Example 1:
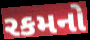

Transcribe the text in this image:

રકમનો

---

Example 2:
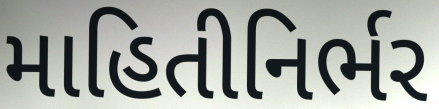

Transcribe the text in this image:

માહિતીનિર્ભર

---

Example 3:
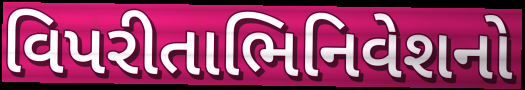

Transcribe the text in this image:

વિપરીતાભિનિવેશનો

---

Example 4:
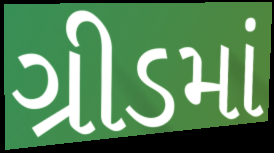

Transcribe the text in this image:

ગ્રીડમાં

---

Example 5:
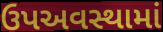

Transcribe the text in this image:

ઉપઅવસ્થામાં